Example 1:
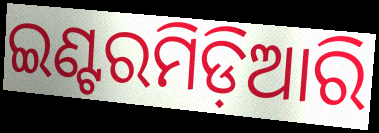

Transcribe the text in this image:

ଇଣ୍ଟରମିଡ଼ିଆରି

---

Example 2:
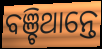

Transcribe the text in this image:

ବଞ୍ଚିଥାନ୍ତେ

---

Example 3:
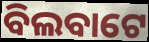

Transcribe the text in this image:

ବିଲବାଟେ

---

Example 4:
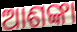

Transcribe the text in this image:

ଆଶଙ୍କା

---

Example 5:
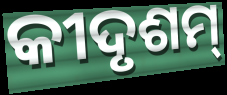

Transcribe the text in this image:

କୀଦୃଶମ୍